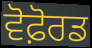
ਵੋਫ਼ੋਰਡ